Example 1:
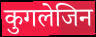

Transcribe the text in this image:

कुगलेजिन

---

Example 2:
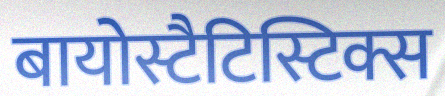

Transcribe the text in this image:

बायोस्टैटिस्टिक्स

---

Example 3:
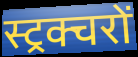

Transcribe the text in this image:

स्ट्रक्चरों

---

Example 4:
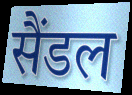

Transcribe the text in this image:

सैंडल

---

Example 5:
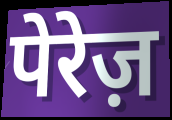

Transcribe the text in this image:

पेरेज़